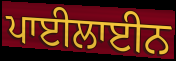
ਪਾਈਲਾਈਨ